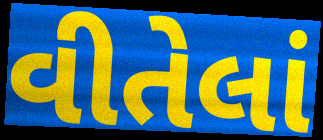
વીતેલાં